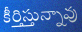
కీర్తిస్తున్నావు